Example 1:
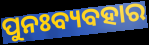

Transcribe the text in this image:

ପୁନଃବ୍ୟବହାର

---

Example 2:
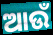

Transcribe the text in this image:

ଆଉଁ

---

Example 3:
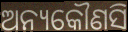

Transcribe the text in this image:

ଅନ୍ୟକୌଣସି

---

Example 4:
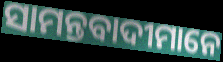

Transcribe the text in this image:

ସାମନ୍ତବାଦୀମାନେ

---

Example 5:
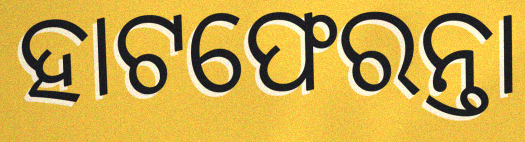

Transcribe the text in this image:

ହାଟଫେରନ୍ତା